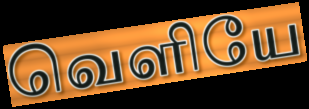
வெளியே